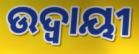
ଉଦ୍ବାୟୀ